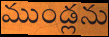
ముండ్లను